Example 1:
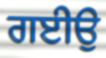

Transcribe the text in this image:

ਗਈਉ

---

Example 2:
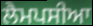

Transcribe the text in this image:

ਲੈਮਪਸੀਆ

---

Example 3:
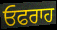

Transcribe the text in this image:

ਓਫਰਾਹ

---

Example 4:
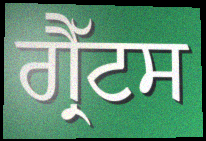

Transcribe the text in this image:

ਗ੍ਰੈੱਟਸ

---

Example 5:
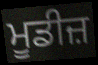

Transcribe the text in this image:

ਮੂਡੀਜ਼